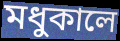
মধুকালে